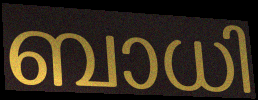
ബാധി